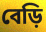
বেড়ি